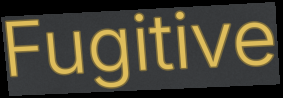
Fugitive